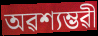
অৱশ্যম্ভৱী